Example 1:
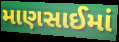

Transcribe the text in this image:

માણસાઈમાં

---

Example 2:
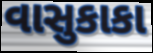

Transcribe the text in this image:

વાસુકાકા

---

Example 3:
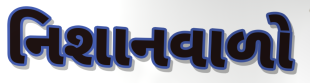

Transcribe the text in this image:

નિશાનવાળો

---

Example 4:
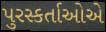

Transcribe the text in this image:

પુરસ્કર્તાઓએ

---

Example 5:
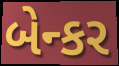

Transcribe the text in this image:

બેન્કર